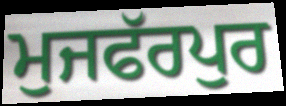
ਮੁਜਫੱਰਪੁਰ